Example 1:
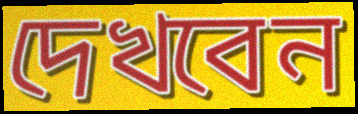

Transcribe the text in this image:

দেখবেন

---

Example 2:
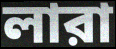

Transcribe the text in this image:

লারা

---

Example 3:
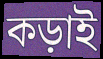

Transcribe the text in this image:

কড়াই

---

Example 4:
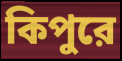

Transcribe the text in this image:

কিপুরে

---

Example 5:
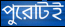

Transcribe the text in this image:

পুরোটই